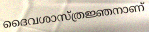
ദൈവശാസ്ത്രജ്ഞനാണ്